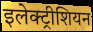
इलेक्‍ट्रीशियन